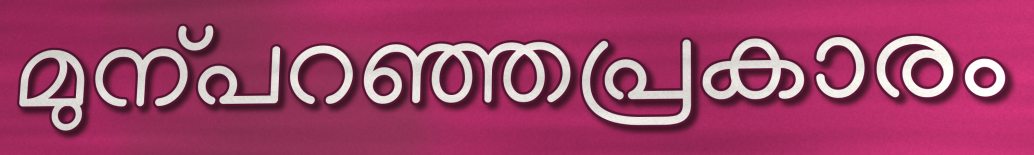
മുന്പറഞ്ഞപ്രകാരം